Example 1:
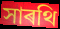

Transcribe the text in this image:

সাৰথি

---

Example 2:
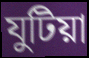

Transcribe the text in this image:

যুটিয়া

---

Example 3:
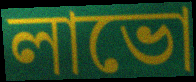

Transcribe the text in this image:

লাভো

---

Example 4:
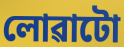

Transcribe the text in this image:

লোৱাটো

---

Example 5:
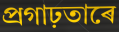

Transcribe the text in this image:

প্ৰগাঢ়তাৰে